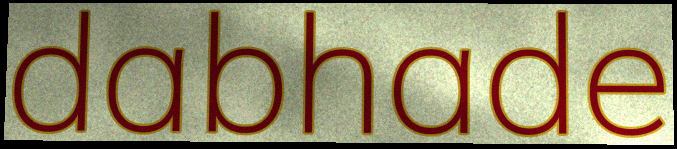
dabhade